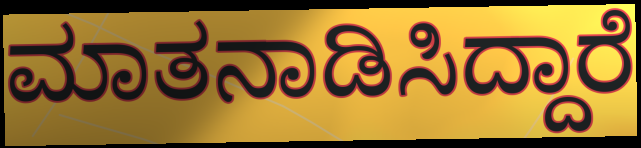
ಮಾತನಾಡಿಸಿದ್ದಾರೆ